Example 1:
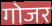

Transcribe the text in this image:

गोजर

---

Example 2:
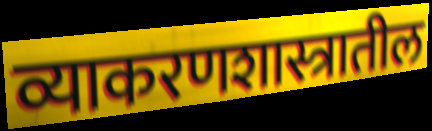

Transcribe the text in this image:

व्याकरणशास्त्रातील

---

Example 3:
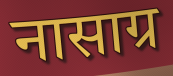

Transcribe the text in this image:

नासाग्र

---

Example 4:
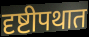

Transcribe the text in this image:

दृष्टीपथात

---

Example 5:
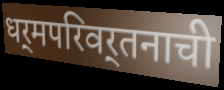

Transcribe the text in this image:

धर्मपरिवर्तनाची